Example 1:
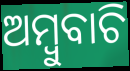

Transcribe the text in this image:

ଅମ୍ବୁବାଚି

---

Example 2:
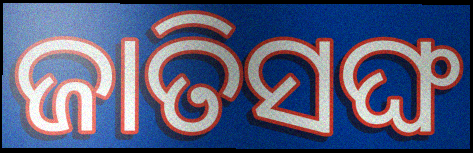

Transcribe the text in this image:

ଜାତିସଙ୍ଘ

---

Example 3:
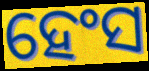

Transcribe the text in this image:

ହେଂସ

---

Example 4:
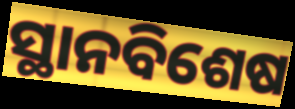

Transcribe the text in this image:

ସ୍ଥାନବିଶେଷ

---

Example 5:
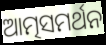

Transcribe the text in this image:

ଆତ୍ମସମର୍ଥନ